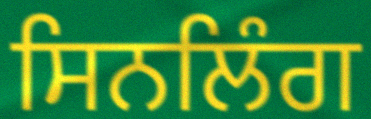
ਸਿਨਲਿੰਗ